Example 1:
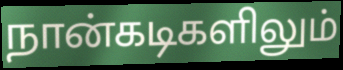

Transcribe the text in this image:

நான்கடிகளிலும்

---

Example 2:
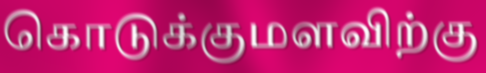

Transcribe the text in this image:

கொடுக்குமளவிற்கு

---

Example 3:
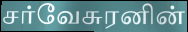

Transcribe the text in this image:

சர்வேசுரனின்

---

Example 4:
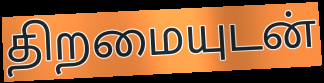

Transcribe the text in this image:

திறமையுடன்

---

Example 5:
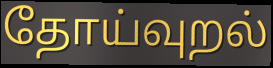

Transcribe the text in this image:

தோய்வுறல்